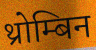
थ्रोम्बिन